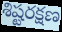
శిష్టరక్షణ